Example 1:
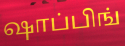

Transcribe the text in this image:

ஷாப்பிங்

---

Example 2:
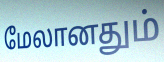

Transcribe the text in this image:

மேலானதும்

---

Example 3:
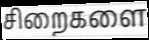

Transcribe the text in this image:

சிறைகளை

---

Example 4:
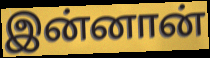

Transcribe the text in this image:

இன்னான்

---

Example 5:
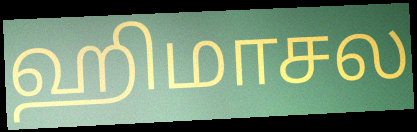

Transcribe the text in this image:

ஹிமாசல